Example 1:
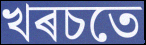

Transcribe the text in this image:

খৰচতে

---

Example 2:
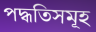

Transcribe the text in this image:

পদ্ধতিসমূহ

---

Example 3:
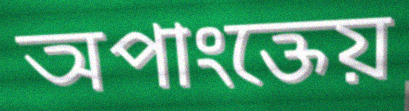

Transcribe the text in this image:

অপাংক্তেয়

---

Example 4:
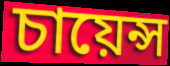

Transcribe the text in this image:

চায়েন্স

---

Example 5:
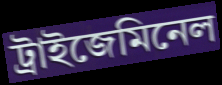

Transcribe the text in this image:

ট্ৰাইজেমিনেল